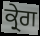
ਕ੍ਰੇਗ